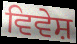
ਵਿਵੇਸ਼